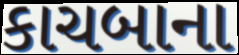
કાચબાના